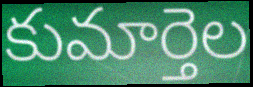
కుమార్తెల